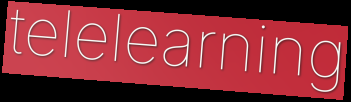
telelearning